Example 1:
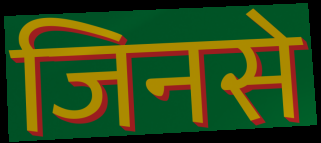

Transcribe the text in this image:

जिनसे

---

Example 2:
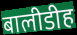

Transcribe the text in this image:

बालीडीह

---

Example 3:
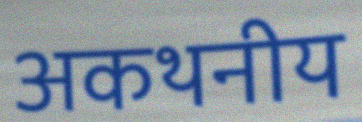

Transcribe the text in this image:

अकथनीय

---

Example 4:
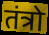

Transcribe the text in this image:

तंत्रो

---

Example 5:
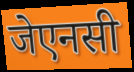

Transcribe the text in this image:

जेएनसी